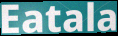
Eatala